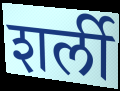
शर्ली